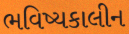
ભવિષ્યકાલીન